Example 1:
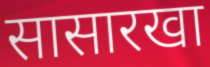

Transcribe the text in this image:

सासारखा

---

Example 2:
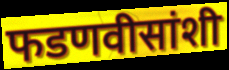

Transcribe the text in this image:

फडणवीसांशी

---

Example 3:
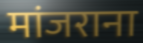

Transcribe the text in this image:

मांजराना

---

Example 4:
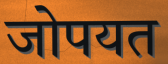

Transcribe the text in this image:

जोपयत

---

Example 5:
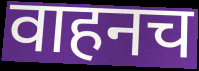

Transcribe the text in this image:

वाहनच